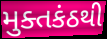
મુક્તકંઠથી